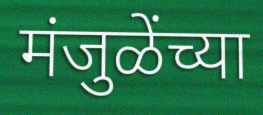
मंजुळेंच्या